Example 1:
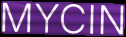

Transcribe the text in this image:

MYCIN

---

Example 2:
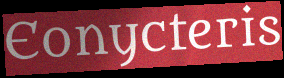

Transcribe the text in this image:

Eonycteris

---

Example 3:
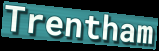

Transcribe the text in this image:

Trentham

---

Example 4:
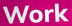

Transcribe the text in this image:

Work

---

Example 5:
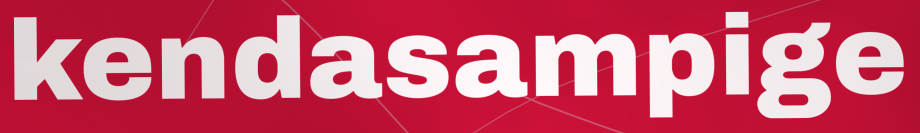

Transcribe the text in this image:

kendasampige